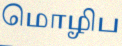
மொழிப